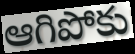
ఆగిపోకు